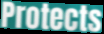
Protects